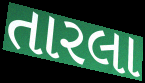
તારલા